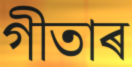
গীতাৰ